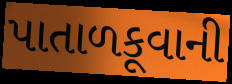
પાતાળકૂવાની